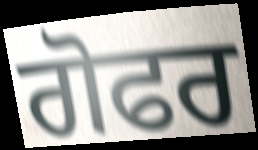
ਗੋਫਰ